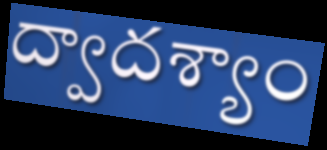
ద్వాదశ్యాం